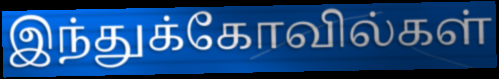
இந்துக்கோவில்கள்